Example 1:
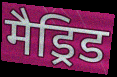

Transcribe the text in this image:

मैड्रिड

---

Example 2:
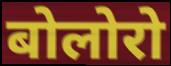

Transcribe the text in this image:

बोलोरो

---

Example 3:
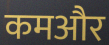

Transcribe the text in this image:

कमऔर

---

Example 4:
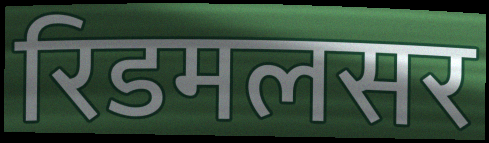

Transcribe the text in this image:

रिडमलसर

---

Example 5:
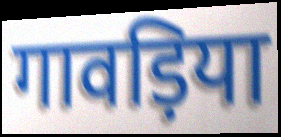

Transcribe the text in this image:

गावड़िया